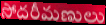
సోదరీమణులు